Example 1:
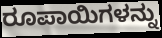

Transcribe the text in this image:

ರೂಪಾಯಿಗಳನ್ನು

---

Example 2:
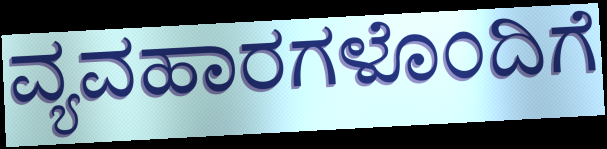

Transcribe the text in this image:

ವ್ಯವಹಾರಗಳೊಂದಿಗೆ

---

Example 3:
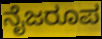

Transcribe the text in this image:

ನೈಜರೂಪ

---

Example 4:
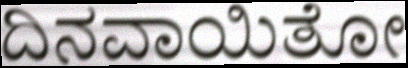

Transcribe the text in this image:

ದಿನವಾಯಿತೋ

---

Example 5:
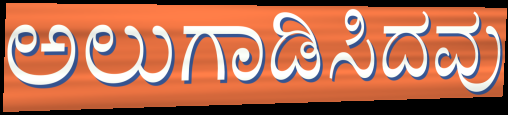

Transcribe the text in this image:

ಅಲುಗಾಡಿಸಿದವು